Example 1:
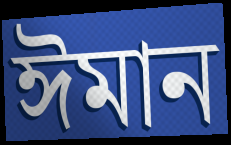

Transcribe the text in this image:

ঈমান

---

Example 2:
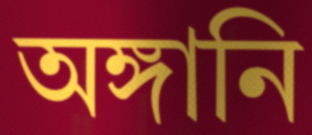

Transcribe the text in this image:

অঙ্গানি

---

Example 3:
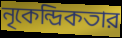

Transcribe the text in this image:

নৃকেন্দ্রিকতার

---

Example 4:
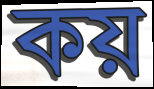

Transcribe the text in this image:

কয়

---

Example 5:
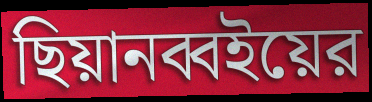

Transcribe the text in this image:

ছিয়ানব্বইয়ের